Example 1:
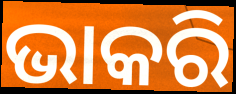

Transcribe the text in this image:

ଭାକରି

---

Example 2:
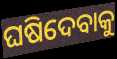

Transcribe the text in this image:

ଘଷିଦେବାକୁ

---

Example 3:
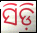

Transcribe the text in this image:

ସିଡ଼ି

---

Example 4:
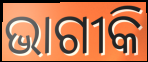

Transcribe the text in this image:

ଭାଗୀକି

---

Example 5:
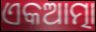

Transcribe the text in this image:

ଏକଆତ୍ମା